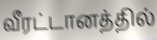
வீரட்டானத்தில்